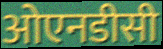
ओएनडीसी